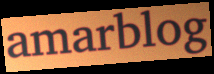
amarblog